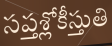
సప్తశ్లోకీస్తుతి